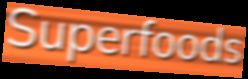
Superfoods